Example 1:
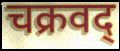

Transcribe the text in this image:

चक्रवद्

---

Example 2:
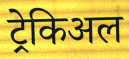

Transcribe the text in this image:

ट्रेकिअल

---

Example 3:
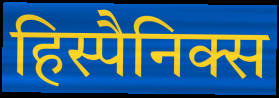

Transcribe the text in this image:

हिस्पैनिक्स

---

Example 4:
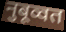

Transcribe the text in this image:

नुबूव्वत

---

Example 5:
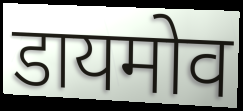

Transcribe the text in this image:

डायमोव